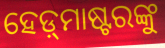
ହେଡ଼୍‌ମାଷ୍ଟରଙ୍କୁ